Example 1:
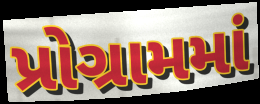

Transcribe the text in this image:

પ્રોગ્રામમાં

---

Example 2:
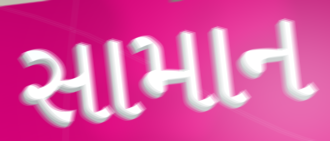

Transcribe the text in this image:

સામાન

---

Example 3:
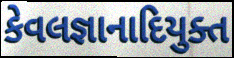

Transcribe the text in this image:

કેવલજ્ઞાનાદિયુક્ત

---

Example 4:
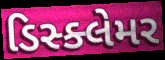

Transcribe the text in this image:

ડિસ્ક્લેમર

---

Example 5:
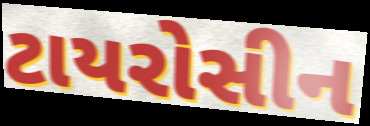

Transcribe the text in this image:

ટાયરોસીન